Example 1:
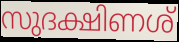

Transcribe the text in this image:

സുദക്ഷിണശ്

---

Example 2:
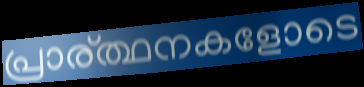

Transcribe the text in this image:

പ്രാര്ത്ഥനകളോടെ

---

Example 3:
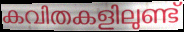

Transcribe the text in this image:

കവിതകളിലുണ്ട്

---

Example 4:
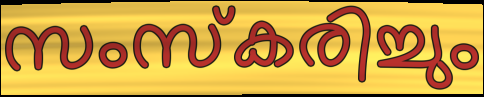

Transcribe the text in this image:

സംസ്കരിച്ചും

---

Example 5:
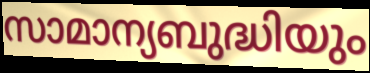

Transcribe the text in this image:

സാമാന്യബുദ്ധിയും